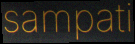
sampati